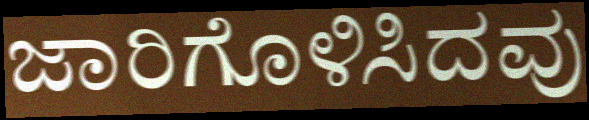
ಜಾರಿಗೊಳಿಸಿದವು